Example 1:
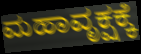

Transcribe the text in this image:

ಮಹಾವೃಕ್ಷಕ್ಕೆ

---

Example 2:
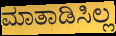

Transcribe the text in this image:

ಮಾತಾಡಿಸಿಲ್ಲ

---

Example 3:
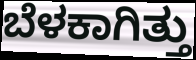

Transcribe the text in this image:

ಬೆಳಕಾಗಿತ್ತು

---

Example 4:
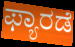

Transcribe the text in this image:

ಫ್ಯಾರಡೆ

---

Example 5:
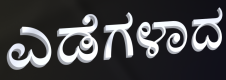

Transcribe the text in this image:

ಎಡೆಗಳಾದ